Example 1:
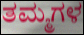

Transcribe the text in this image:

ತಮ್ಮಗಳ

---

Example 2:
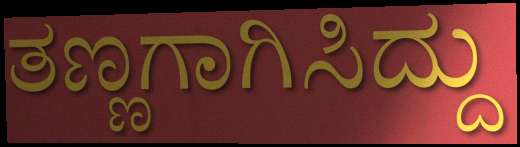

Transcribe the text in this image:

ತಣ್ಣಗಾಗಿಸಿದ್ದು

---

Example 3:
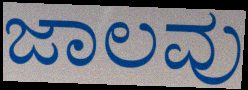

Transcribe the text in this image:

ಜಾಲವು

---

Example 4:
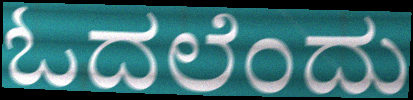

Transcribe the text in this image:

ಓದಲೆಂದು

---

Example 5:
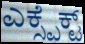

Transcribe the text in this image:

ಎಕ್ಸ್ಪೆಕ್ಟ್